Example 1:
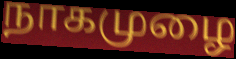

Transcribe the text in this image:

நாகமுழை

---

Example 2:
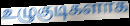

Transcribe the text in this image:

உழுகுடிகளாக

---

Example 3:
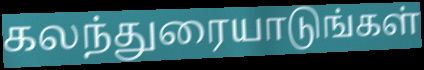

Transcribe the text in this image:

கலந்துரையாடுங்கள்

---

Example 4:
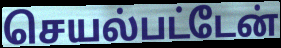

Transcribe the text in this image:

செயல்பட்டேன்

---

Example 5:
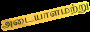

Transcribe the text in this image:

அடையாளமற்று